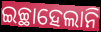
ଇଚ୍ଛାହେଲାନି